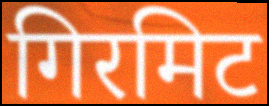
गिरमिट